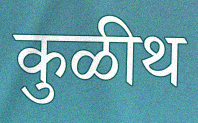
कुळीथ